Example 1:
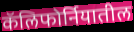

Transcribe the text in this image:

कॅलिफोर्नियातील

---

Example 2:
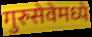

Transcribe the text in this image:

गुरुसेवेमध्ये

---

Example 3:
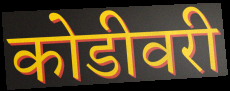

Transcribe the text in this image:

कोडीवरी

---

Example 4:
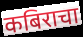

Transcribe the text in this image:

कबिराचा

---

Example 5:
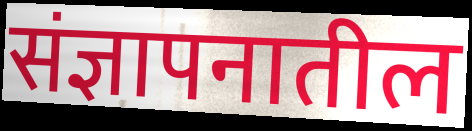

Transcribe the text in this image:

संज्ञापनातील